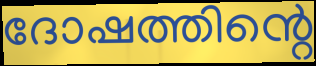
ദോഷത്തിന്റെ